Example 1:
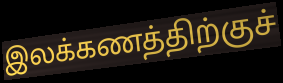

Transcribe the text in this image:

இலக்கணத்திற்குச்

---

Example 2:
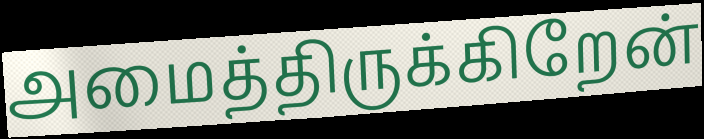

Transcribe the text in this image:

அமைத்திருக்கிறேன்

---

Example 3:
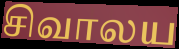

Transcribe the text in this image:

சிவாலய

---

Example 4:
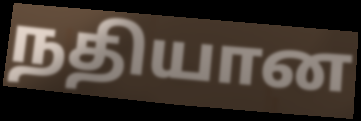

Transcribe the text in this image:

நதியான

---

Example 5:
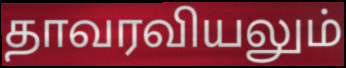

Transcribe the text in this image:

தாவரவியலும்